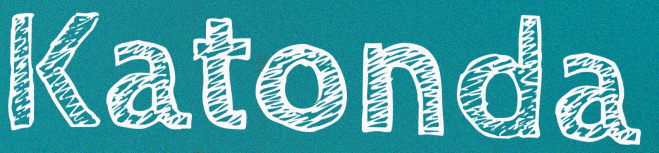
Katonda